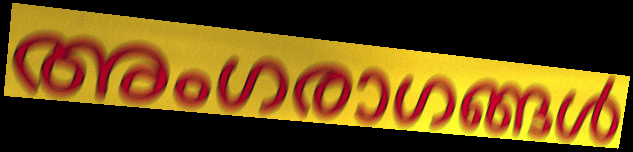
അംഗരാഗങ്ങൾ